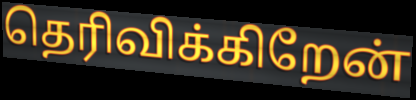
தெரிவிக்கிறேன்